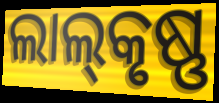
ଲାଲ୍‌କୃଷ୍ଣ